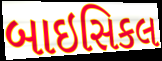
બાઇસિકલ